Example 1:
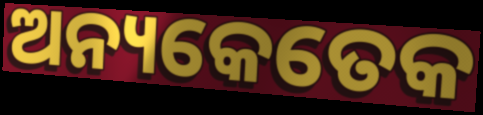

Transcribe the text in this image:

ଅନ୍ୟକେତେକ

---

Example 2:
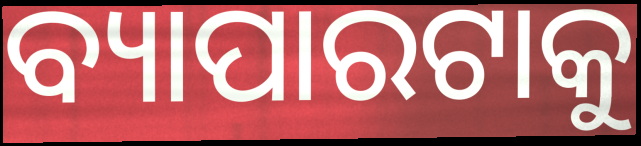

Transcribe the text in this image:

ବ୍ୟାପାରଟାକୁ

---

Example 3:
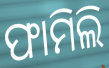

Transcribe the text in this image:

ଫାମିଲି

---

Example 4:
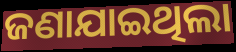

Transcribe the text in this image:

ଜଣାଯାଇଥିଲା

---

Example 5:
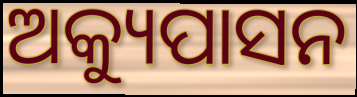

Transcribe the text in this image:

ଅକ୍ୟୁପାସନ